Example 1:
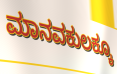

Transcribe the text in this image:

ಮಾನವಕುಲಕ್ಕೂ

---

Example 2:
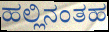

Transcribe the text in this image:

ಹಲ್ಲಿನಂತಹ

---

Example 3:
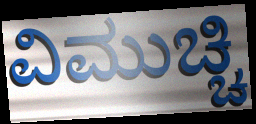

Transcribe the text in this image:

ವಿಮುಚ್ಚಿ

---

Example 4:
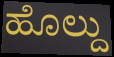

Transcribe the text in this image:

ಹೊಲ್ದು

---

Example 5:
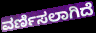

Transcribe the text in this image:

ವರ್ಣಿಸಲಾಗಿದೆ